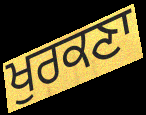
ਖੁਰਕਣਾ